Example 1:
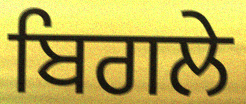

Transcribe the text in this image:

ਬਿਗਲੇ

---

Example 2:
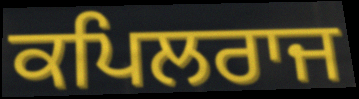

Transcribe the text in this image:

ਕਪਿਲਰਾਜ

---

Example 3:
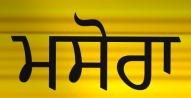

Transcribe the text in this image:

ਮਸੋਰਾ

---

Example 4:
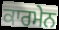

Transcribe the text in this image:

ਕਾਰਮੇਨ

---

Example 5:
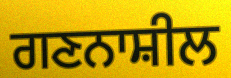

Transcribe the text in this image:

ਗਣਨਾਸ਼ੀਲ